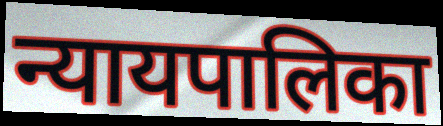
न्यायपालिका